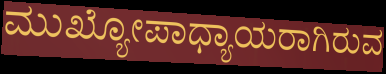
ಮುಖ್ಯೋಪಾಧ್ಯಾಯರಾಗಿರುವ